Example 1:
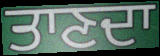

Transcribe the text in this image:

ਤਾਣਦਾ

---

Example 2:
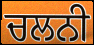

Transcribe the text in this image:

ਚਲਨੀ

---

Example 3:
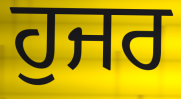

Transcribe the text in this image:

ਹੁਜਰ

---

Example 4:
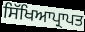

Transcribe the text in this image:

ਸਿੱਖਿਆਪ੍ਰਾਪਤ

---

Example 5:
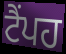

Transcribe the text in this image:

ਟੈਂਪਹ